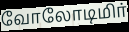
வோலோடிமிர்